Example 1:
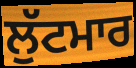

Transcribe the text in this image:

ਲੁੱਟਮਾਰ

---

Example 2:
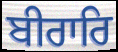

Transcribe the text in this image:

ਬੀਰਾਰਿ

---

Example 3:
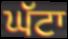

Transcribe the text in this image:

ਘੱਟਾ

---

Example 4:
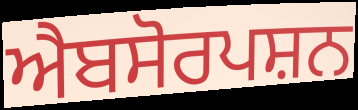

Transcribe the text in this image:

ਐਬਸੋਰਪਸ਼ਨ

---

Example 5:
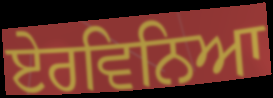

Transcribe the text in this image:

ਏਰਵਿਨਿਆ